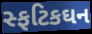
સ્ફટિકઘન